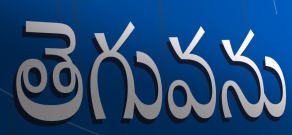
తెగువను